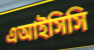
এআইসিসি